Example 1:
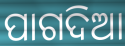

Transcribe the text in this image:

ପାଗଦିଆ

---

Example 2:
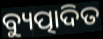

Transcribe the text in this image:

ବ୍ୟୁତ୍ପାଦିତ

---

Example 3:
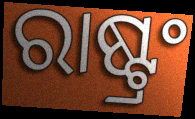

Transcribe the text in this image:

ରାଷ୍ଟ୍ରଂ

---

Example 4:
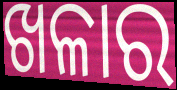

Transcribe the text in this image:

ଖଳାର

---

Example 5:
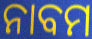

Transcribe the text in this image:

ନାବମ